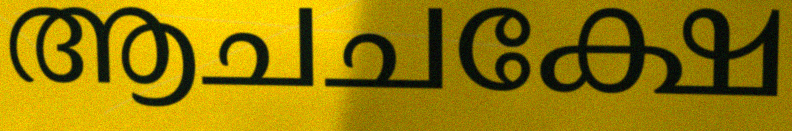
ആചചക്ഷേ